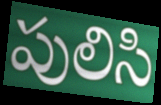
పులిసి